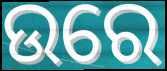
ଉରେ